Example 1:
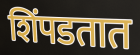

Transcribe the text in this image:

शिंपडतात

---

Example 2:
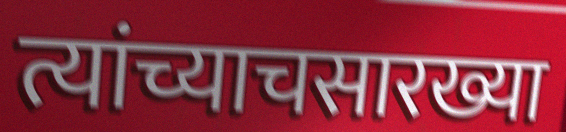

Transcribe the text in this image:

त्यांच्याचसारख्या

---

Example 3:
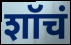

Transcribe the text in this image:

शॉचं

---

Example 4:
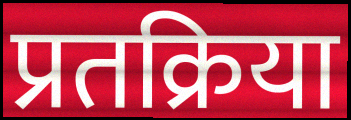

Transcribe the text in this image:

प्रतक्रिया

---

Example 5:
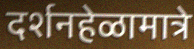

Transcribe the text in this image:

दर्शनहेळामात्रे